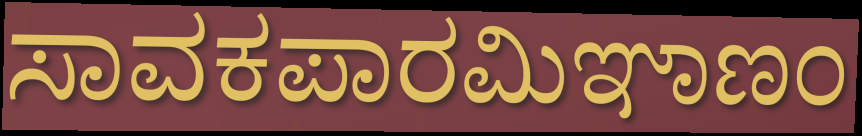
ಸಾವಕಪಾರಮಿಞಾಣಂ